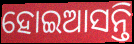
ହୋଇଆସନ୍ତି